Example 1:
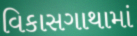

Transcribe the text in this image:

વિકાસગાથામાં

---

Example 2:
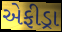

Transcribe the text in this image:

એફીડ્રા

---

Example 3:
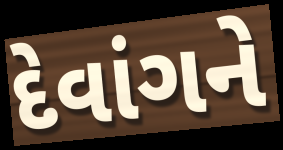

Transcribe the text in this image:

દેવાંગને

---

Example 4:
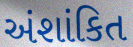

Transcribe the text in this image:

અંશાંકિત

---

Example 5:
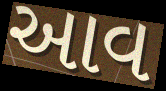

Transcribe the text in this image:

આવ